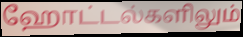
ஹோட்டல்களிலும்